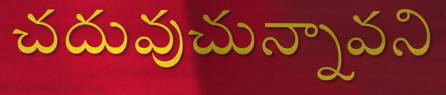
చదువుచున్నావని